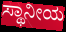
ಸ್ಥಾನೀಯ